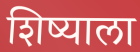
शिष्याला